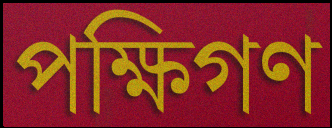
পক্ষিগণ